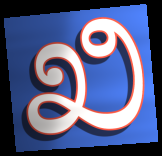
ಖಿ